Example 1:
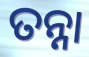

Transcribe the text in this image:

ତନ୍ନା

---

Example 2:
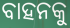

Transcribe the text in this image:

ବାହନକୁ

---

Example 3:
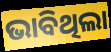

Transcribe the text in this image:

ଭାବିଥିଲା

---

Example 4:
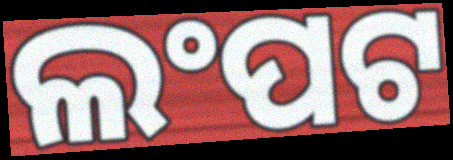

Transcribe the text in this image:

ଲଂପଟ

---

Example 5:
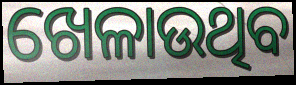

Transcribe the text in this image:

ଖେଳାଉଥିବ